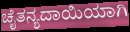
ಚೈತನ್ಯದಾಯಿಯಾಗಿ